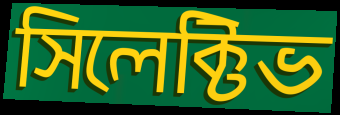
সিলেক্টিভ